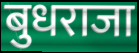
बुधराजा